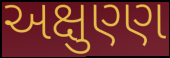
અક્ષુણ્ણ